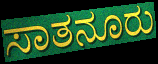
ಸಾತನೂರು